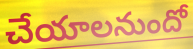
చేయాలనుందో